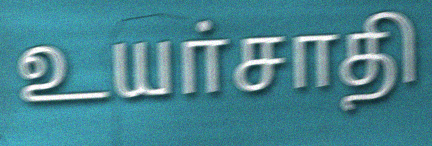
உயர்சாதி